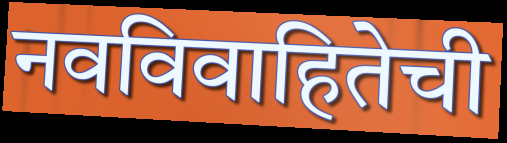
नवविवाहितेची